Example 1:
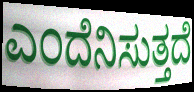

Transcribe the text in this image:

ಎಂದೆನಿಸುತ್ತದೆ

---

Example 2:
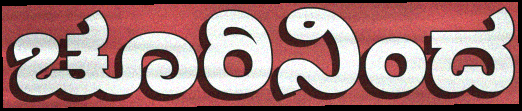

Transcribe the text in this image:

ಚೂರಿನಿಂದ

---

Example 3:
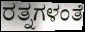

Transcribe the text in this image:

ರತ್ನಗಳಂತೆ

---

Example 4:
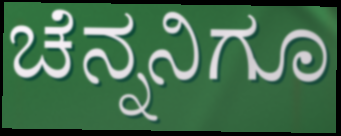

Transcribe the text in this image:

ಚೆನ್ನನಿಗೂ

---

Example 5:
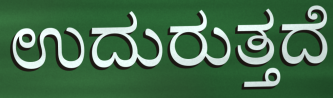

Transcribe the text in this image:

ಉದುರುತ್ತದೆ